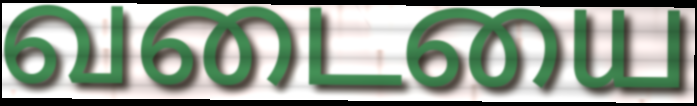
வடையை